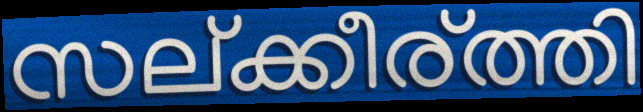
സല്ക്കീര്ത്തി